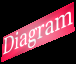
Diagram